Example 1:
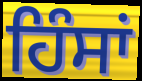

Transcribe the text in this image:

ਹਿੰਸਾਂ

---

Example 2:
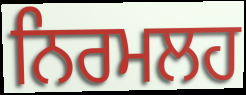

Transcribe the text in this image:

ਨਿਰਮਲਹ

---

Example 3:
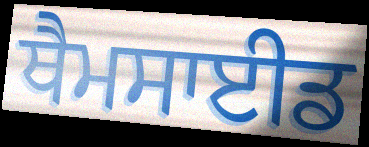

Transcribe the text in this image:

ਥੈਮਸਾਈਡ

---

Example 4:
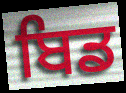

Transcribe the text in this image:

ਬਿਡ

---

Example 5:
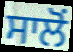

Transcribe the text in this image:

ਸਾਲੋਂ